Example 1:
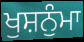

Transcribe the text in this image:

ਖੁਸ਼ਨੁੰਮਾ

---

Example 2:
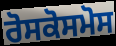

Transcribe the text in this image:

ਰੋਸਕੋਸਮੋਸ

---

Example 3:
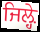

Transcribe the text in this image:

ਜਿਲ਼੍ਹੇ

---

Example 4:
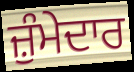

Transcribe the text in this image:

ਜ਼ੁੰਮੇਦਾਰ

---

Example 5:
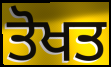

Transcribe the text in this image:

ਤੋਖਤ